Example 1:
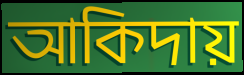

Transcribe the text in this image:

আকিদায়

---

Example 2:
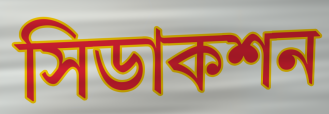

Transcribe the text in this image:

সিডাকশন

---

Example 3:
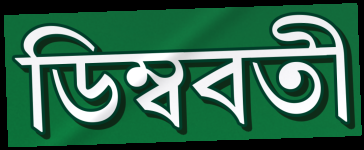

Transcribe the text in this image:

ডিম্ববতী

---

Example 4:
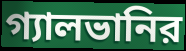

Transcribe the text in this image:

গ্যালভানির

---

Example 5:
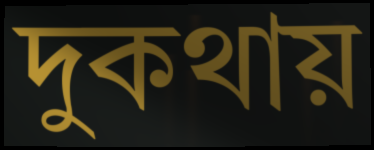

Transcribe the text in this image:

দুকথায়